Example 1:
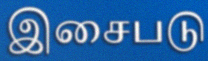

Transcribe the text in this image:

இசைபடு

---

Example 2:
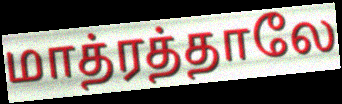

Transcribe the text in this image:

மாத்ரத்தாலே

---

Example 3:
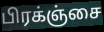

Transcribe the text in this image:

பிரக்ஞ்சை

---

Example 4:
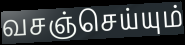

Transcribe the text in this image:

வசஞ்செய்யும்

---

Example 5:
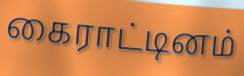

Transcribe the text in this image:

கைராட்டினம்